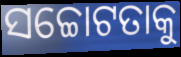
ସଚ୍ଚୋଟତାକୁ